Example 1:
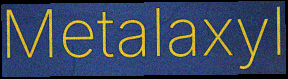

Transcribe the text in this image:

Metalaxyl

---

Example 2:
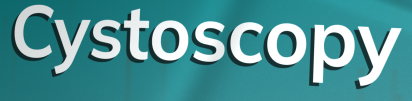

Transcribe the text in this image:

Cystoscopy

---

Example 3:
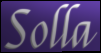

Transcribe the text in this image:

Solla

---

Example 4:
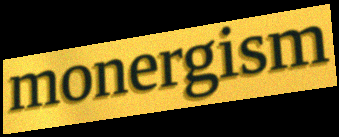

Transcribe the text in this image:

monergism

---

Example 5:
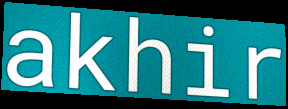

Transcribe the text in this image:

akhir